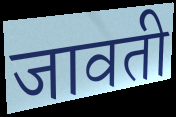
जावती